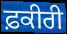
ਫ਼ਕੀਰੀ